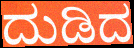
ದುಡಿದ